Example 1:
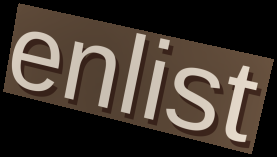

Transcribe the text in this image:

enlist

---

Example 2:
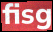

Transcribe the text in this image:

fisg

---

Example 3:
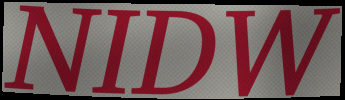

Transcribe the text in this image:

NIDW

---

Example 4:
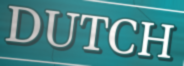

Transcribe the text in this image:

DUTCH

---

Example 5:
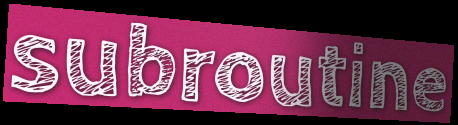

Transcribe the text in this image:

subroutine